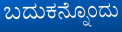
ಬದುಕನ್ನೊಂದು